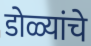
डोळ्यांचे